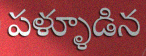
పళ్ళూడిన